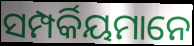
ସମ୍ପର୍କିୟମାନେ